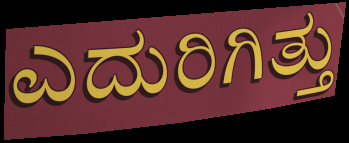
ಎದುರಿಗಿತ್ತು